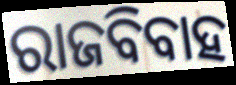
ରାଜବିବାହ